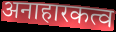
अनाहारकत्व